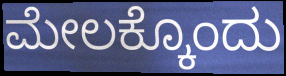
ಮೇಲಕ್ಕೊಂದು